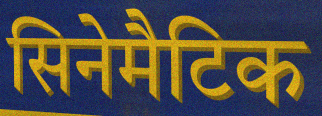
सिनेमैटिक